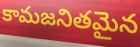
కామజనితమైన